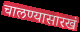
चालण्यासारखं